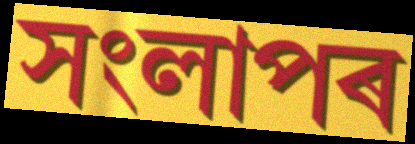
সংলাপৰ